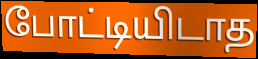
போட்டியிடாத